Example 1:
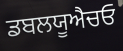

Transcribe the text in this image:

ਡਬਲਯੂਐਚਓ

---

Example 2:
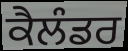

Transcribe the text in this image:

ਕੈਲੰਡਰ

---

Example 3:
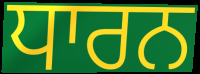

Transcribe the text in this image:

ਧਾਰਨ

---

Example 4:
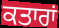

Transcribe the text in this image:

ਕਤਾਰਾਂ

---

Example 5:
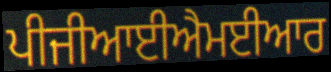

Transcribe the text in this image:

ਪੀਜੀਆਈਐਮਈਆਰ